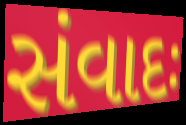
સંવાદઃ